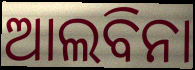
ଆଲବିନା